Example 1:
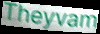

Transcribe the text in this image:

Theyvam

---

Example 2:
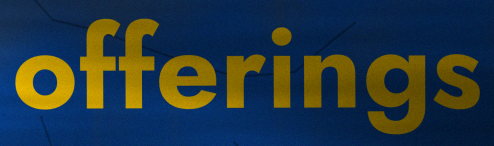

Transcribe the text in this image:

offerings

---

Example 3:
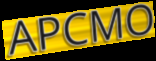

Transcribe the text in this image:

APCMO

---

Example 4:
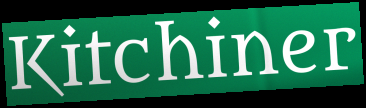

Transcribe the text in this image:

Kitchiner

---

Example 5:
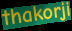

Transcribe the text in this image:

thakorji